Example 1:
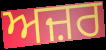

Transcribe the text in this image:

ਅਜ਼ਰ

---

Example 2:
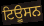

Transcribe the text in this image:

ਟਿਊਸਨ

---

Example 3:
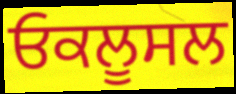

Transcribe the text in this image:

ਓਕਲੂਸਲ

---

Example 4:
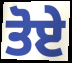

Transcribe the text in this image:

ਤੋਏ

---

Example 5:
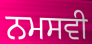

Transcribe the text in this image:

ਨਮਸਵੀ